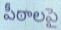
పీఠాలపై